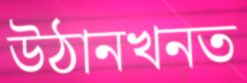
উঠানখনত